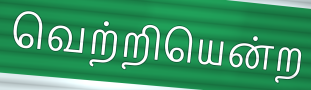
வெற்றியென்ற